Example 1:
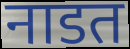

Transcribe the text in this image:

नाडत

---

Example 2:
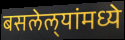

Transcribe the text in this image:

बसलेल्यांमध्ये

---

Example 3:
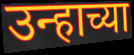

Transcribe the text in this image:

उन्हाच्या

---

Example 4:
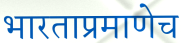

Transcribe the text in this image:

भारताप्रमाणेच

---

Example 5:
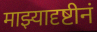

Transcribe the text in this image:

माझ्यादृष्टीनं